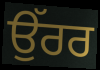
ਉੱਰਰ